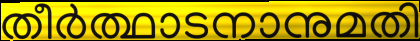
തീർത്ഥാടനാനുമതി